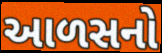
આળસનો